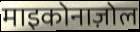
माइकोनाज़ोल